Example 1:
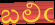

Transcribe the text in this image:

బలిఁ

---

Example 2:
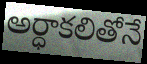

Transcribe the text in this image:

అర్ధాకలితోనే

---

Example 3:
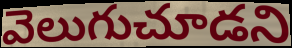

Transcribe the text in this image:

వెలుగుచూడని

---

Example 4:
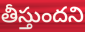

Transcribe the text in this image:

తీస్తుందని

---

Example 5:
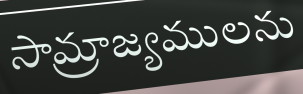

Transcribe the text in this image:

సామ్రాజ్యములను